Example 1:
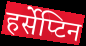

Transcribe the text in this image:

हर्सेप्टिन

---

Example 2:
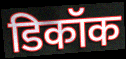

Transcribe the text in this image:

डिकॉक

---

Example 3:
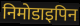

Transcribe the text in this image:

निमोडाइपिन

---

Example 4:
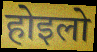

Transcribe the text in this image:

होइलो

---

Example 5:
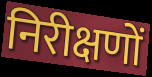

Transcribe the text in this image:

निरीक्षणों